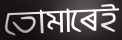
তোমাৰেই